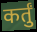
कर्तुं